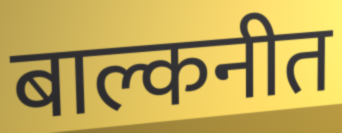
बाल्कनीत